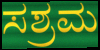
ಸಶ್ರಮ